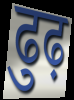
ढुढ़